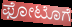
ಫೋಟೊಗೆ